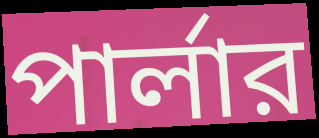
পার্লার